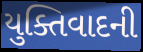
યુક્તિવાદની